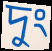
দুং